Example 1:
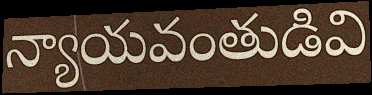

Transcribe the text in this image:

న్యాయవంతుడివి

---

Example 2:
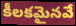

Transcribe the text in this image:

కీలకమైనవే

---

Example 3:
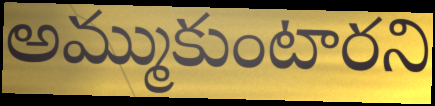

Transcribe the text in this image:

అమ్ముకుంటారని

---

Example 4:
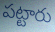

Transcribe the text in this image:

పట్టారు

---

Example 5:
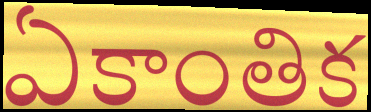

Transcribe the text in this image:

ఏకాంతిక